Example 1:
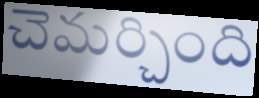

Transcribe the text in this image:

చెమర్చింది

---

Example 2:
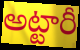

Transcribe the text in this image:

అట్టారీ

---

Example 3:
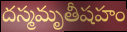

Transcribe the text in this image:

దస్మమృతీషహం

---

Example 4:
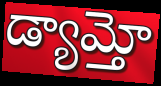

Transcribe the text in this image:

డ్యామ్తో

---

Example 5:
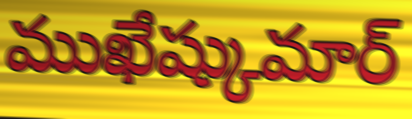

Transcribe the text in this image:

ముఖేష్కుమార్